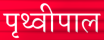
पृथ्वीपाल